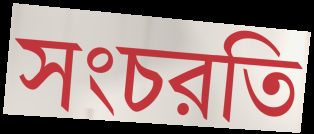
সংচরতি